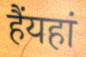
हैंयहां